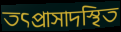
তৎপ্রাসাদস্থিত